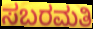
ಸಬರಮತಿ